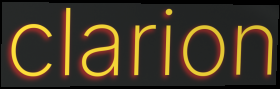
clarion